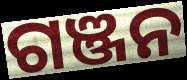
ଗଞ୍ଜନ